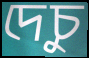
দেচু